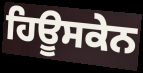
ਹਿਊਸਕੇਨ